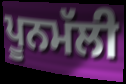
ਪੂਨਮੱਲੀ